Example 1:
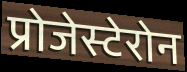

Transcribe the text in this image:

प्रोजेस्टेरोन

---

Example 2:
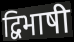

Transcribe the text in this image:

द्विभाषी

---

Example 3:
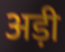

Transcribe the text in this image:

अड़ी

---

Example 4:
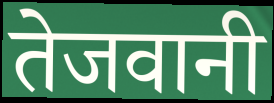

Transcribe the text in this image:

तेजवानी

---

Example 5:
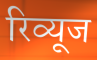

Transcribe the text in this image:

रिव्यूज